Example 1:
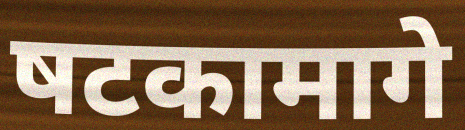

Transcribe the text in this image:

षटकामागे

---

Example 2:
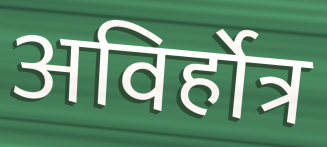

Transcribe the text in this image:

अविर्होत्र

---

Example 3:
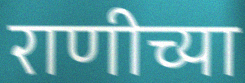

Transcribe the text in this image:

राणीच्या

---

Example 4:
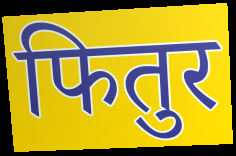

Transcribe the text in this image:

फितुर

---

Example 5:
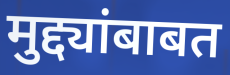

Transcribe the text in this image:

मुद्द्यांबाबत